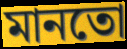
মানতো